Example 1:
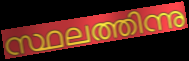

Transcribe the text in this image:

സ്ഥലത്തിന്നു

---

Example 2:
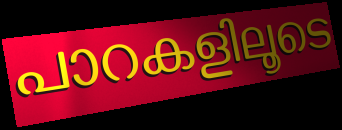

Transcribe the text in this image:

പാറകളിലൂടെ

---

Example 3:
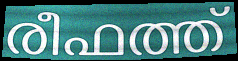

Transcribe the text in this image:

രീഫത്ത്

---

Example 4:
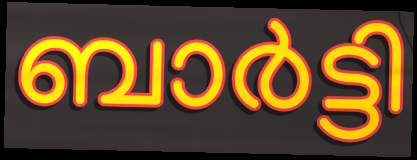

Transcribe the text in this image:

ബാർട്ടി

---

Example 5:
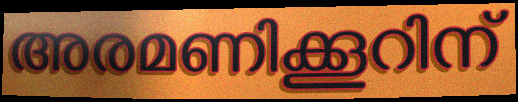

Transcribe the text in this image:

അരമണിക്കൂറിന്